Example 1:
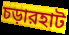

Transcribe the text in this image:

চড়ারহাট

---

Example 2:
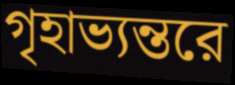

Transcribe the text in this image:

গৃহাভ্যন্তরে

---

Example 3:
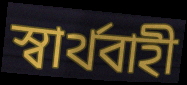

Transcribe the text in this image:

স্বার্থবাহী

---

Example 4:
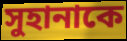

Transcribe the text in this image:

সুহানাকে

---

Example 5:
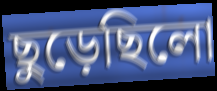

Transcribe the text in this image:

ছুড়েছিলো